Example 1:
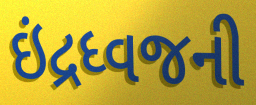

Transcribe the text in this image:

ઇંદ્રધ્વજની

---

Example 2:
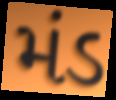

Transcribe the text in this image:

મંડ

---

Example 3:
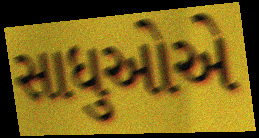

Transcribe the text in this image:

સાધુઓએ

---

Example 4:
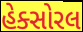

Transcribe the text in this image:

હેક્સોરલ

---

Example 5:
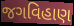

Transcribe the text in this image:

જગવિહાણ